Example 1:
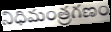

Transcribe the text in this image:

నిధిమంత్రగణం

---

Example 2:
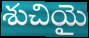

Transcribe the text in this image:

శుచియై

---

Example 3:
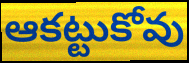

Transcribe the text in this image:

ఆకట్టుకోవు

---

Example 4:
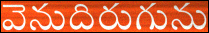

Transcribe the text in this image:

వెనుదిరుగును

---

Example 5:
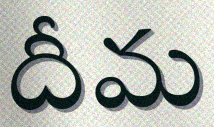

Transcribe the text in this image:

దీమ